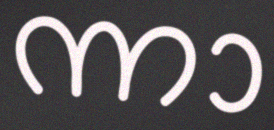
ന്നാ